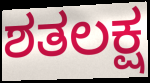
ಶತಲಕ್ಷ